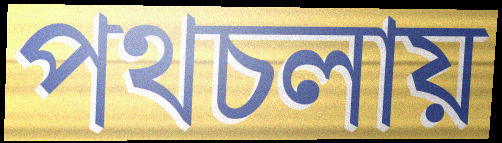
পথচলায়